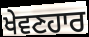
ਖੇਵਣਹਾਰ